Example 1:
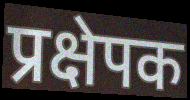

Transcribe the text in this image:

प्रक्षेपक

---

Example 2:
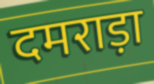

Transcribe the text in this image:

दमराड़ा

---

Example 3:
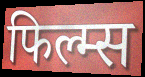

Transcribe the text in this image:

फिल्म्स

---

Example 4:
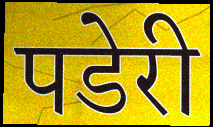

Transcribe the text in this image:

पडेरी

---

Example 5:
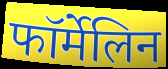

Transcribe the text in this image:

फॉर्मेलिन